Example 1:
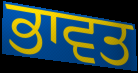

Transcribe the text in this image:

ਭਾਵਤ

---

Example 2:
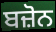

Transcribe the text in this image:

ਬਜ਼ੋਨ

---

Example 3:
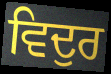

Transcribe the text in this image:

ਵਿਦੁਰ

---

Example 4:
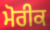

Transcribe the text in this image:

ਮੋਰੀਕ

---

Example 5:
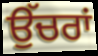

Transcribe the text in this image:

ਉੱਚਰਾਂ